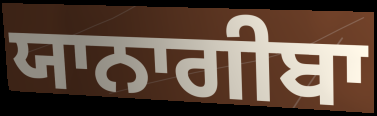
ਯਾਨਾਗੀਬਾ